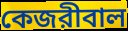
কেজরীবাল